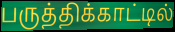
பருத்திக்காட்டில்